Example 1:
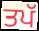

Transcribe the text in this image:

ਤਪੱ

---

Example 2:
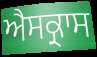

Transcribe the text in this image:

ਐਸਕ੍ਰਾਸ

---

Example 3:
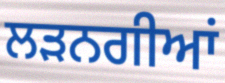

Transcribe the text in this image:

ਲੜਨਗੀਆਂ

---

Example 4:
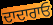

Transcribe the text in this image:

ਦਾਦਾਰਾਓ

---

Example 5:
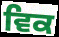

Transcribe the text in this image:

ਵਿਕ